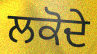
ਲਕੋਦੇ